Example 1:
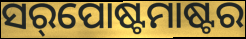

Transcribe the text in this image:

ସର୍‌ପୋଷ୍ଟମାଷ୍ଟର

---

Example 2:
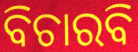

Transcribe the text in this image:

ବିଚାରବି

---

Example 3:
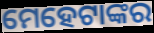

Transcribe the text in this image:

ମେହେଟାଙ୍କର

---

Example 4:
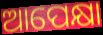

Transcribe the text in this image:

ଆପେକ୍ଷା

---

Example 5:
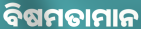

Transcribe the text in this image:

ବିଷମତାମାନ